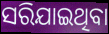
ସରିଯାଇଥିବା